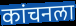
कांचनला